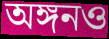
অঙ্গনও